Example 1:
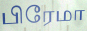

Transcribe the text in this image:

பிரேமா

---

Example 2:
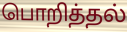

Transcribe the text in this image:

பொறித்தல்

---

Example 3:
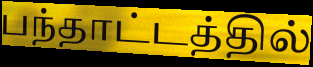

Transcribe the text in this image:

பந்தாட்டத்தில்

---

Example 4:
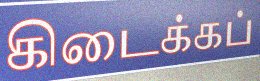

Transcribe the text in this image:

கிடைக்கப்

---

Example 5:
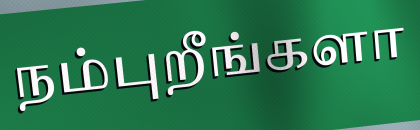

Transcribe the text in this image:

நம்புறீங்களா